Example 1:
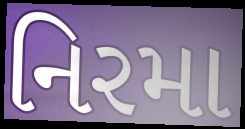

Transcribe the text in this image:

નિરમા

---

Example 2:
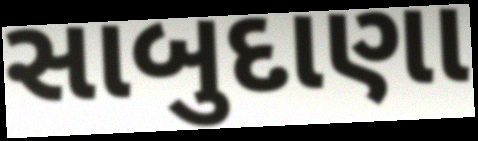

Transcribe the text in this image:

સાબુદાણા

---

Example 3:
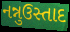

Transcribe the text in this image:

નન્નુઉસ્તાદ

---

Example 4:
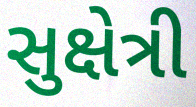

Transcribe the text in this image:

સુક્ષેત્રી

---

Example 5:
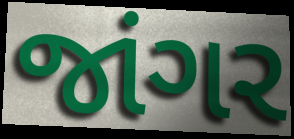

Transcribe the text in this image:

જાંગર